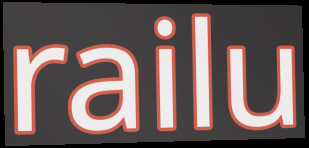
railu